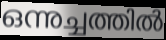
ഒന്നുച്ചത്തിൽ